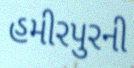
હમીરપુરની